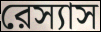
রেস্যাস